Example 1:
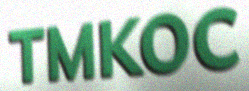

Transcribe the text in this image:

TMKOC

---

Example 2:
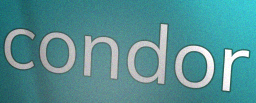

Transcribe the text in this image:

condor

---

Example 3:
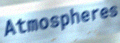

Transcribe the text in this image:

Atmospheres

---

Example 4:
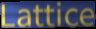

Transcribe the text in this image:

Lattice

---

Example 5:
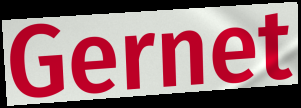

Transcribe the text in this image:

Gernet